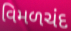
વિમળચંદ